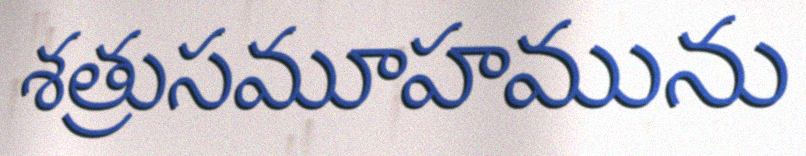
శత్రుసమూహమును